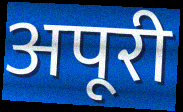
अपूरी